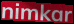
nimkar